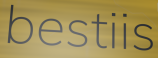
bestiis